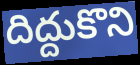
దిద్దుకొని